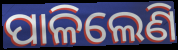
ପାଳିଲେଣି